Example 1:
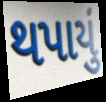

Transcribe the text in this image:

થપાયું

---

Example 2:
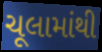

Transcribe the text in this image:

ચૂલામાંથી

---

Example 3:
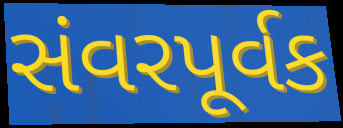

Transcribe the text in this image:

સંવરપૂર્વક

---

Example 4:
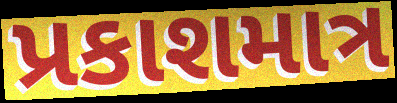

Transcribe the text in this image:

પ્રકાશમાત્ર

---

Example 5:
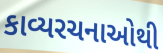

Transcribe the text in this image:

કાવ્યરચનાઓથી